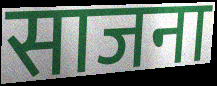
साजना